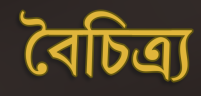
বৈচিত্র্য